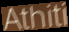
Athiti